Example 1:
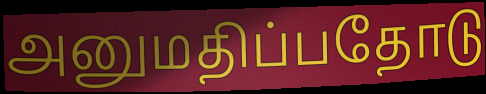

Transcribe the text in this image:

அனுமதிப்பதோடு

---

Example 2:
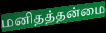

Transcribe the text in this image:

மனிதத்தன்மை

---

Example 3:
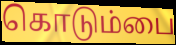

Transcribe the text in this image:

கொடும்பை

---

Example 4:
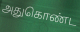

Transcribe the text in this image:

அதுகொண்ட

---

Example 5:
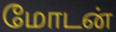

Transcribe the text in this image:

மோடன்